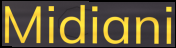
Midiani